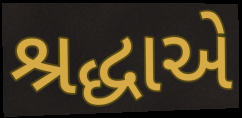
શ્રદ્ધાએ